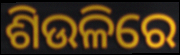
ଶିଉଳିରେ